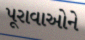
પૂરાવાઓને